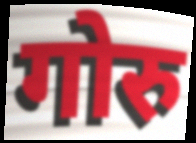
गोरु